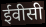
ईवीसी